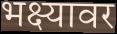
भक्ष्यावर